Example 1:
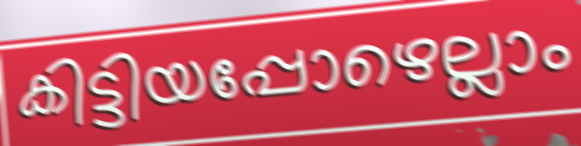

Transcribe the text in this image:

കിട്ടിയപ്പോഴെല്ലാം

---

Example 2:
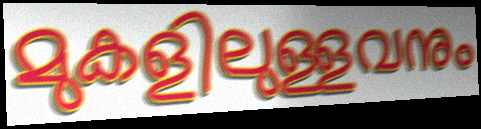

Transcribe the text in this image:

മുകളിലുള്ളവനും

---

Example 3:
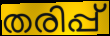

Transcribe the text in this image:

തരിപ്പ്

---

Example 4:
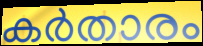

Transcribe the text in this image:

കർതാരം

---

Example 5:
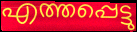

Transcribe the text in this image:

എത്തപ്പെട്ടു